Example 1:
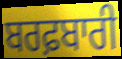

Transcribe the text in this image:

ਬਰਫ਼ਬਾਰੀ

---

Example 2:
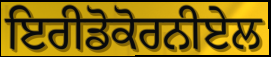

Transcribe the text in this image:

ਇਰੀਡੋਕੋਰਨੀਏਲ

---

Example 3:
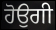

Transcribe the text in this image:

ਹੋਉਗੀ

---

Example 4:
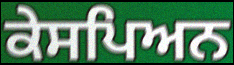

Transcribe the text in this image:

ਕੇਸਪਿਅਨ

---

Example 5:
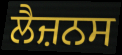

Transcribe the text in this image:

ਲੈਜ਼ਨਸ